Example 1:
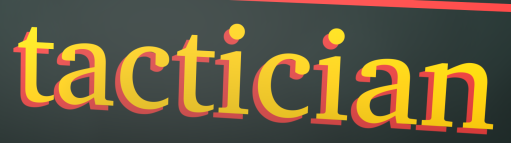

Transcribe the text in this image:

tactician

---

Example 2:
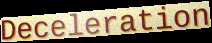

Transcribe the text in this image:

Deceleration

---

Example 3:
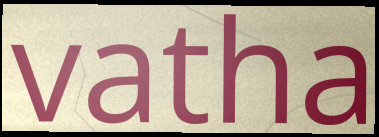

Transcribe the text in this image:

vatha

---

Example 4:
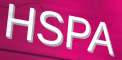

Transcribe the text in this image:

HSPA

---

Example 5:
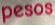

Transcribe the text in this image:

pesos